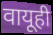
वायूही